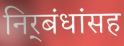
निर्बंधांसह